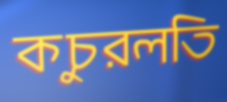
কচুরলতি